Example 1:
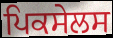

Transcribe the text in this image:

ਪਿਕਸੇਲਸ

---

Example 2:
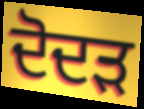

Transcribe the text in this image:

ਦੋਦੜ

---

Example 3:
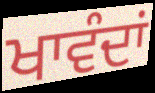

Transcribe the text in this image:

ਖਾਵੰਦਾਂ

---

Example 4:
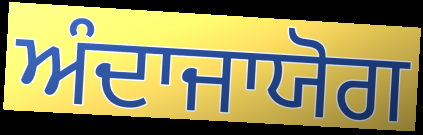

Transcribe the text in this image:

ਅੰਦਾਜਾਯੋਗ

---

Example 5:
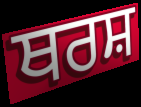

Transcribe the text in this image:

ਥਰਸ਼